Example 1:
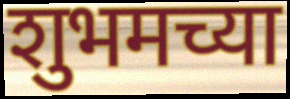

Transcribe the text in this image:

शुभमच्या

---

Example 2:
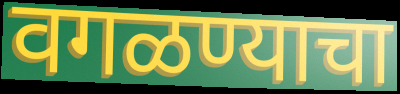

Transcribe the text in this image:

वगळण्याचा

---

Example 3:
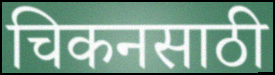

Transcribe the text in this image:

चिकनसाठी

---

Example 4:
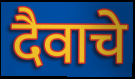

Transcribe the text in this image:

दैवाचे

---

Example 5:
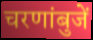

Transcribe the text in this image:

चरणांबुजें